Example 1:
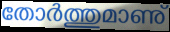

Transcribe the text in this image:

തോർത്തുമാണു്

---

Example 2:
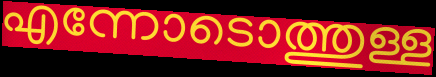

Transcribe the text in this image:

എന്നോടൊത്തുള്ള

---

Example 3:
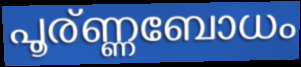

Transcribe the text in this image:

പൂര്ണ്ണബോധം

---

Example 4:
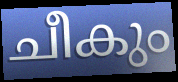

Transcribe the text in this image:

ചീകും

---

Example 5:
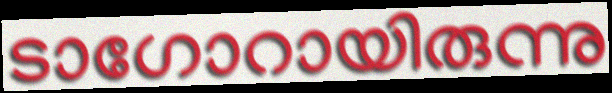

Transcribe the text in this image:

ടാഗോറായിരുന്നു